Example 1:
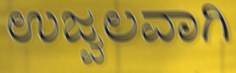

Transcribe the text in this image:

ಉಜ್ವಲವಾಗಿ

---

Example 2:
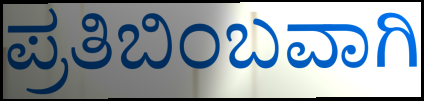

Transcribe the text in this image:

ಪ್ರತಿಬಿಂಬವಾಗಿ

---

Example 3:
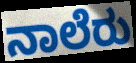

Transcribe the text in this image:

ನಾಲೆರು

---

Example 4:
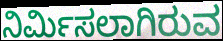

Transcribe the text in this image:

ನಿರ್ಮಿಸಲಾಗಿರುವ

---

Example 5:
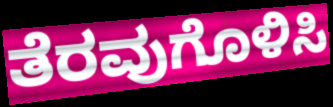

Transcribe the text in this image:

ತೆರವುಗೊಳಿಸಿ